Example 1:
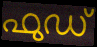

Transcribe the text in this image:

ഫുഡ്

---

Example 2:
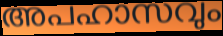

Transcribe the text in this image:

അപഹാസവും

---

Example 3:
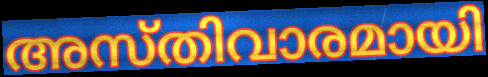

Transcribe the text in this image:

അസ്തിവാരമായി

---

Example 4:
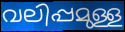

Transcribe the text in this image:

വലിപ്പമുള്ള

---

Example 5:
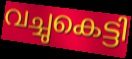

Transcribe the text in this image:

വച്ചുകെട്ടി